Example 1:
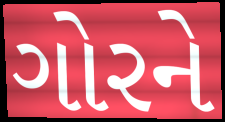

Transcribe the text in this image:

ગોરને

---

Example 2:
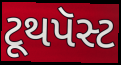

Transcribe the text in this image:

ટૂથપૅસ્ટ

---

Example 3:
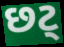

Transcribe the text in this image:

છટ્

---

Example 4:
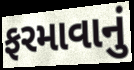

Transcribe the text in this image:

ફરમાવાનું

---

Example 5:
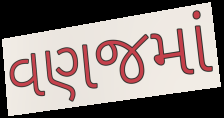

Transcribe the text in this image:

વણજમાં